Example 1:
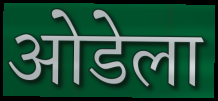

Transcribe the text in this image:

ओडेला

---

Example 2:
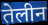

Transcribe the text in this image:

तेलीन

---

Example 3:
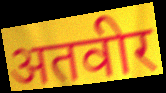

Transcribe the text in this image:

अतवीर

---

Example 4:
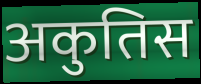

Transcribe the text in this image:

अकुतिस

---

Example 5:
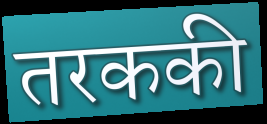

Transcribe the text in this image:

तरककी